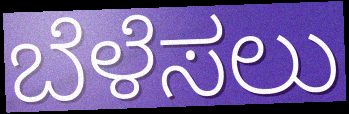
ಬೆಳೆಸಲು